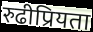
रुढीप्रियता